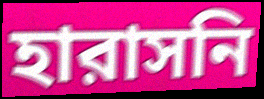
হারাসনি